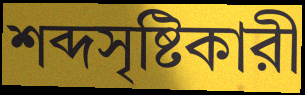
শব্দসৃষ্টিকারী